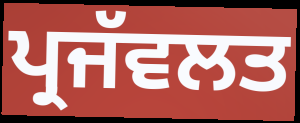
ਪ੍ਰਜੱਵਲਤ